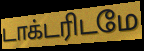
டாக்டரிடமே